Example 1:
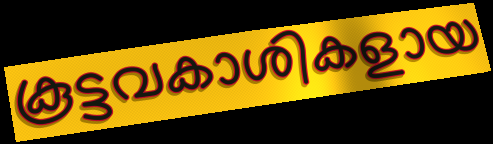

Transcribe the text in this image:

കൂട്ടവകാശികളായ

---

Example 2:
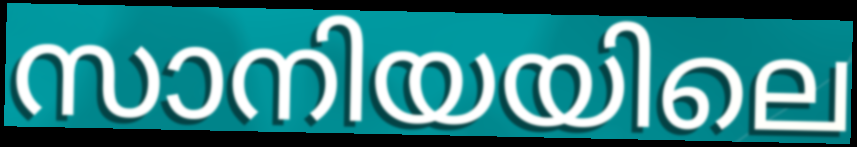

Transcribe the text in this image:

സാനിയയിലെ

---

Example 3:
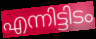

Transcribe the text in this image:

എന്നിട്ടിടം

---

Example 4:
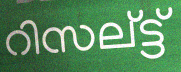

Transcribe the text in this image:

റിസല്ട്ട്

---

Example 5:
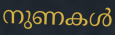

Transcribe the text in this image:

നുണകൾ